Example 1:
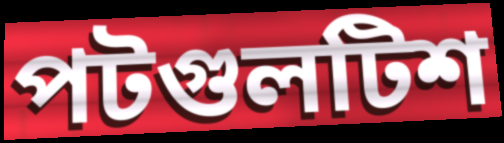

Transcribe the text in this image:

পটগুলটিশ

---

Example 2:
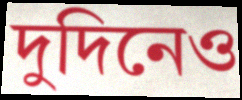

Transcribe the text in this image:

দুদিনেও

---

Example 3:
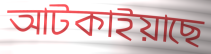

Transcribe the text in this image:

আটকাইয়াছে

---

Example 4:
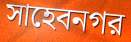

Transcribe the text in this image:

সাহেবনগর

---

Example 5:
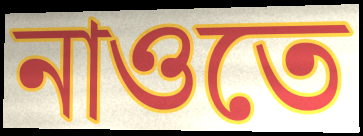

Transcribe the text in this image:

নাওতে